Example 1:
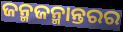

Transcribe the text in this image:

ଜନ୍ମଜନ୍ମାନ୍ତରର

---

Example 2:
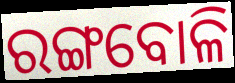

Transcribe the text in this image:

ରଙ୍ଗବୋଳି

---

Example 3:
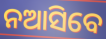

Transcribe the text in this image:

ନଆସିବେ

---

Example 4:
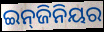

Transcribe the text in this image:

ଇନ୍‌ଜିନିୟର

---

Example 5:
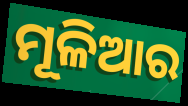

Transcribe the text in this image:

ମୂଳିଆର